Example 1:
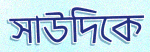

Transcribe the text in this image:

সাউদিকে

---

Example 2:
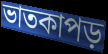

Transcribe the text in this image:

ভাতকাপড়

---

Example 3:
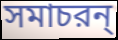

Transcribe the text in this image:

সমাচরন্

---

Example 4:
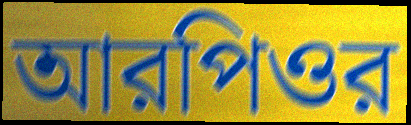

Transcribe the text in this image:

আরপিওর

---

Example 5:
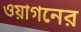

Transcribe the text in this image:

ওয়াগনের